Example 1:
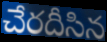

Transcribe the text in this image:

చేరదీసిన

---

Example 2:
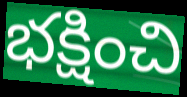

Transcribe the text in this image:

భక్షించి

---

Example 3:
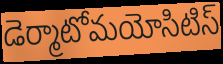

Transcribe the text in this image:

డెర్మాటోమయోసిటిస్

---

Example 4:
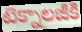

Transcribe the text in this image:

టెక్నాలజీకి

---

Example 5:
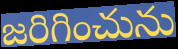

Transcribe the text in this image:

జరిగించును